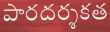
పారదర్శకత